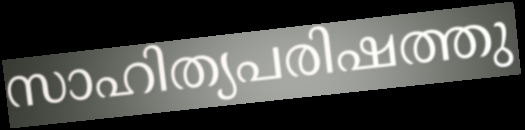
സാഹിത്യപരിഷത്തു